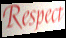
Respect